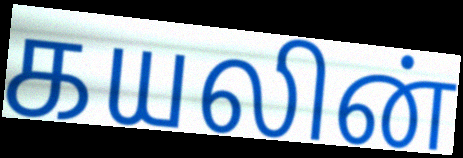
கயலின்